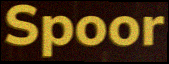
Spoor